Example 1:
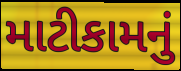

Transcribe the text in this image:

માટીકામનું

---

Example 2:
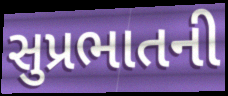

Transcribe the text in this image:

સુપ્રભાતની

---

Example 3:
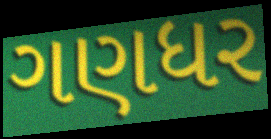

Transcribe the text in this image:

ગણધર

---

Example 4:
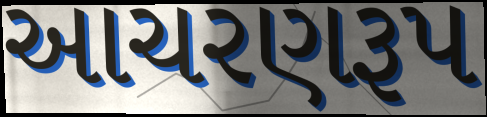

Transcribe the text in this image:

આચરણરૂપ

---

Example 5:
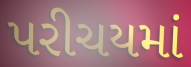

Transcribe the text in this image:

પરીચયમાં